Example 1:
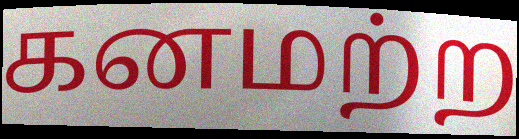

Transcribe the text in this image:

கனமற்ற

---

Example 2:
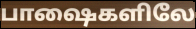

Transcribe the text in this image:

பாஷைகளிலே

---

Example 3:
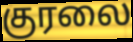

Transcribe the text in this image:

குரலை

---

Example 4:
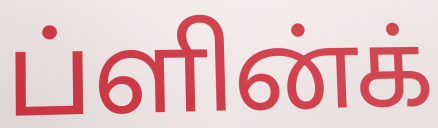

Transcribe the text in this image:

ப்ளின்க்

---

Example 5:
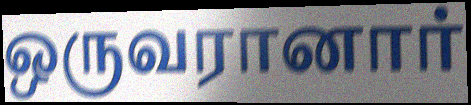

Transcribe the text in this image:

ஒருவரானார்